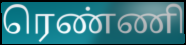
ரெண்ணி